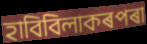
হাবিবিলাকৰপৰা